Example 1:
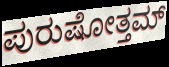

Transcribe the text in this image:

ಪುರುಷೋತ್ತಮ್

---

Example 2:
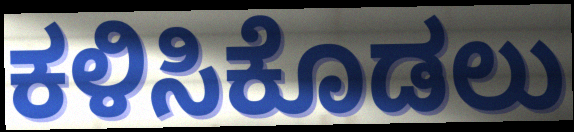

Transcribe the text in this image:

ಕಳಿಸಿಕೊಡಲು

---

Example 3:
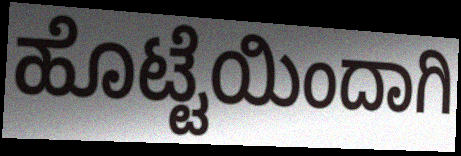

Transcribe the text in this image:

ಹೊಟ್ಟೆಯಿಂದಾಗಿ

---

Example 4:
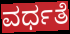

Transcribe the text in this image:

ವರ್ಧತೆ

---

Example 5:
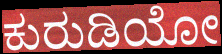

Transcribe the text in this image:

ಕುರುಡಿಯೋ